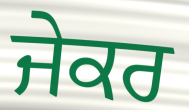
ਜੇਕਰ